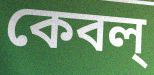
কেবল্